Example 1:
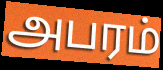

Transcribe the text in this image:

அபரம்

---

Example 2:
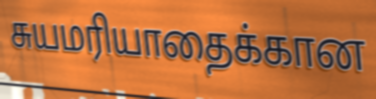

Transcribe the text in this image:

சுயமரியாதைக்கான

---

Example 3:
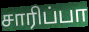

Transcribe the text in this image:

சாரிப்பா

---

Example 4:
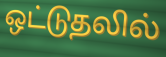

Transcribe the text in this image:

ஒட்டுதலில்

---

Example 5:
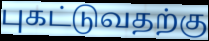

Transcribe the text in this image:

புகட்டுவதற்கு